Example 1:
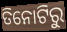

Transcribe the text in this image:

ତିନୋଟିରୁ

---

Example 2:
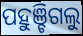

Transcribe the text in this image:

ପହୁଞ୍ଚିଗଲୁ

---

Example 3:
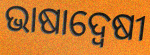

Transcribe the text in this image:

ଭାଷାଦ୍ଵେଷୀ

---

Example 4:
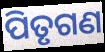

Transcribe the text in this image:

ପିତୃଗଣ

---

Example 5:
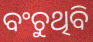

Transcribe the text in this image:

ବଂଚୁଥିବି